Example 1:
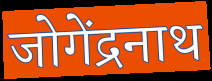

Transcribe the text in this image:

जोगेंद्रनाथ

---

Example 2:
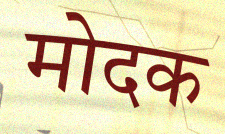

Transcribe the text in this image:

मोदक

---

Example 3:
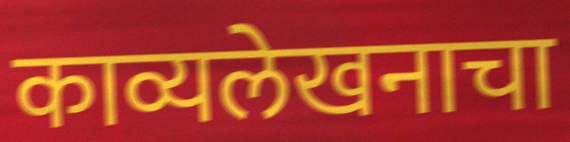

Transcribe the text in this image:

काव्यलेखनाचा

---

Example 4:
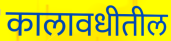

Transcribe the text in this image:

कालावधीतील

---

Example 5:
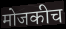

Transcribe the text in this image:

मोजकीच